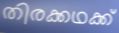
തിരക്കഥക്ക്